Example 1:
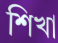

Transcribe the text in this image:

শিখা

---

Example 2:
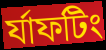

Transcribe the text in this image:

র্যাফটিং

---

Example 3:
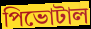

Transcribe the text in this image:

পিভোটাল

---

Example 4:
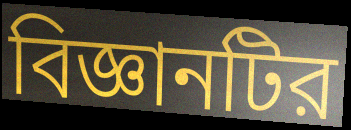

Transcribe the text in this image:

বিজ্ঞানটির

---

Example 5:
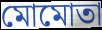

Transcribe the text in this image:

মোমোতা